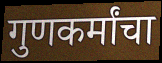
गुणकर्मांचा